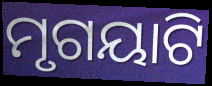
ମୃଗୟାଟି